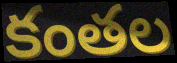
కంతల